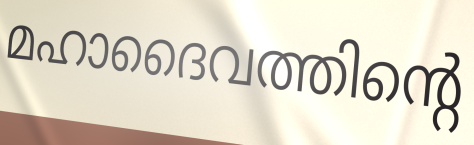
മഹാദൈവത്തിന്റെ